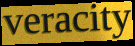
veracity